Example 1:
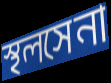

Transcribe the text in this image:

স্থলসেনা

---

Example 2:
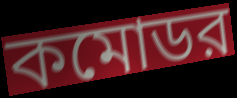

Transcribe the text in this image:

কমোডর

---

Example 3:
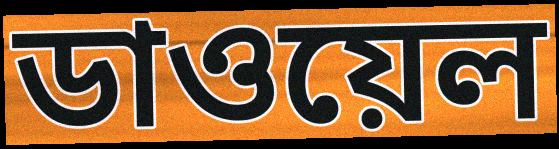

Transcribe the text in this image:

ডাওয়েল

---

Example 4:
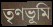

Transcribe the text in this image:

তৃণভূমি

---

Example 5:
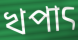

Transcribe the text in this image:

খপাৎ